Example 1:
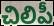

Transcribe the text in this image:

చిలిపీ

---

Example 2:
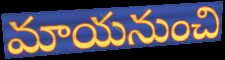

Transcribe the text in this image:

మాయనుంచి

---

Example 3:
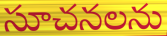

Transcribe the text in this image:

సూచనలను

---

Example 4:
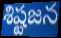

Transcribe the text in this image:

శిష్టజన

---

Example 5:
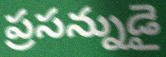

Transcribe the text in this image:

ప్రసన్నుడై